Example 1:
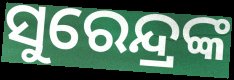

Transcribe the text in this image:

ସୁରେନ୍ଦ୍ରଙ୍କ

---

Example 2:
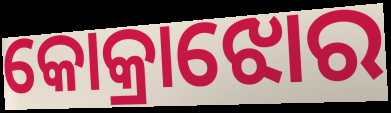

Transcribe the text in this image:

କୋକ୍ରାଝୋର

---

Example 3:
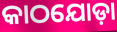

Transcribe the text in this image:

କାଠଯୋଡ଼ା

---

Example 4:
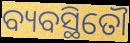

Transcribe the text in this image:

ବ୍ୟବସ୍ଥିତୌ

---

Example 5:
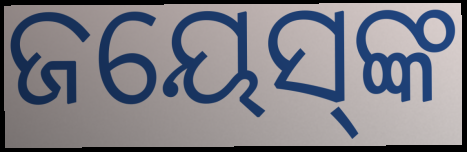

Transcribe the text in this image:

ଜୟେସ୍‌ଙ୍କ